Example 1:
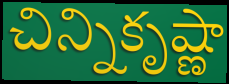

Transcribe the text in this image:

చిన్నికృష్ణా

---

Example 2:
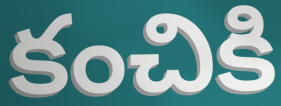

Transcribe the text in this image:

కంచికి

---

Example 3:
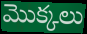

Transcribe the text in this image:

మొక్కలు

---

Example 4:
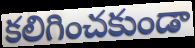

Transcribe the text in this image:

కలిగించకుండా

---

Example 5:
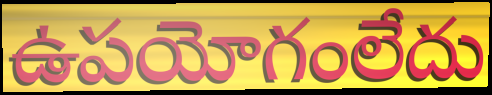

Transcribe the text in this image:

ఉపయోగంలేదు